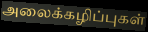
அலைக்கழிப்புகள்